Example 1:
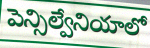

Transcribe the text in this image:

పెన్సిల్వేనియాలో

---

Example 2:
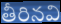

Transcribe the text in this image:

తీరినవి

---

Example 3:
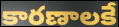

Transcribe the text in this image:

కారణాలకే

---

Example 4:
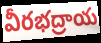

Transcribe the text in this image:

వీరభద్రాయ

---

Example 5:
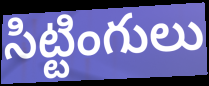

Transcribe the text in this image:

సిట్టింగులు